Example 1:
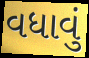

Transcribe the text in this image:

વધાવું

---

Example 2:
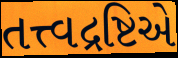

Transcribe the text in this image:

તત્ત્વદ્રષ્ટિએ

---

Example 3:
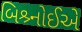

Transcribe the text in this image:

બિશ્ર્નોઈએ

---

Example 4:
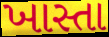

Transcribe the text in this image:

ખાસ્તા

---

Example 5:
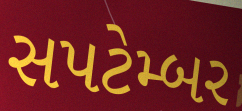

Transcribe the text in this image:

સપટેમ્બર